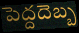
పెద్దదెబ్బ